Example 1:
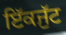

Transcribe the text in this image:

ਇੱਕਜੁੱਟ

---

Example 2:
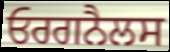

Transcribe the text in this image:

ਓਰਗਨੈਲਸ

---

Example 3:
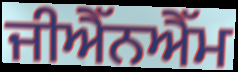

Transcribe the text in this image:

ਜੀਐੱਨਐੱਮ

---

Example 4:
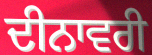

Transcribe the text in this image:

ਦੀਨਾਵਰੀ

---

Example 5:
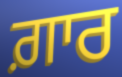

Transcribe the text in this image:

ਗ਼ਾਰ